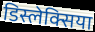
डिस्लेक्सिया